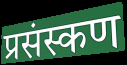
प्रसंस्कण